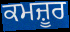
ਕਮਜ਼ੂਰ